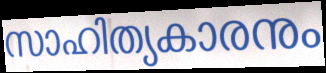
സാഹിത്യകാരനും